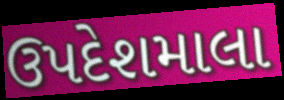
ઉપદેશમાલા